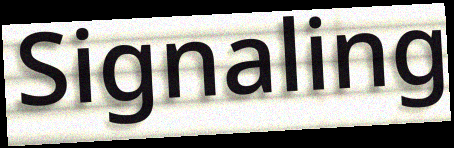
Signaling